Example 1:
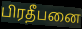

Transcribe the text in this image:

பிரதீபனை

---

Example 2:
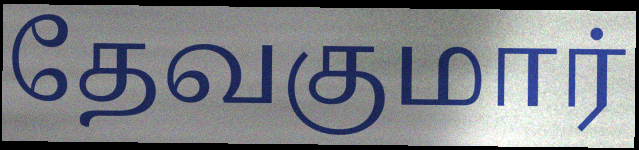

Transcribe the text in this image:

தேவகுமார்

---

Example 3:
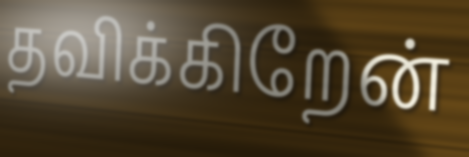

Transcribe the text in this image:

தவிக்கிறேன்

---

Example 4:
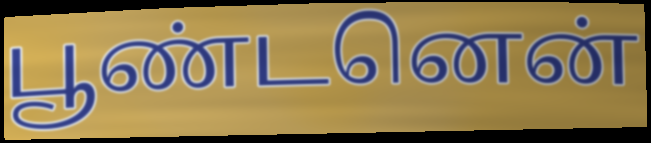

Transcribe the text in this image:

பூண்டனென்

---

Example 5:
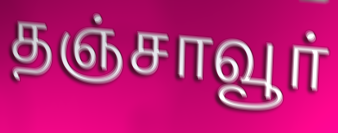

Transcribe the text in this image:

தஞ்சாவூர்